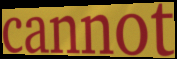
cannot